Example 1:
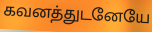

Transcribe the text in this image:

கவனத்துடனேயே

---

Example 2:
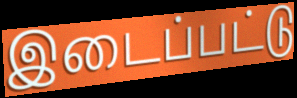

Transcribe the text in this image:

இடைப்பட்டு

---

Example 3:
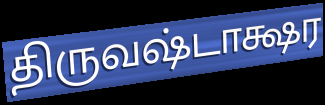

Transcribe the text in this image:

திருவஷ்டாக்ஷர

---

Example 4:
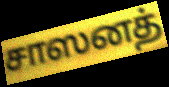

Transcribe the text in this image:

சாஸனத்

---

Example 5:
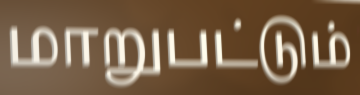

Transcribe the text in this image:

மாறுபட்டும்